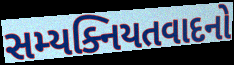
સમ્યક્નિયતવાદનો